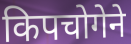
किपचोगेने